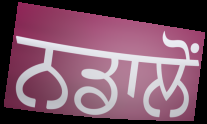
ਨਡਾਲੋਂ